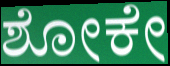
ಶೋಕೇ